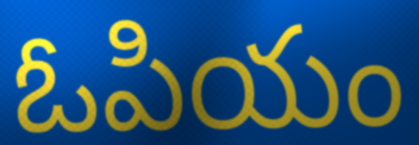
ఓపియం